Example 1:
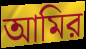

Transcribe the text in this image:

আমির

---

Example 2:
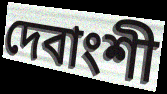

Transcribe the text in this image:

দেবাংশী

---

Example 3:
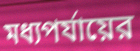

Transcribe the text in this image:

মধ্যপর্যায়ের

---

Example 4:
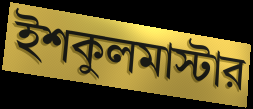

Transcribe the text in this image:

ইশকুলমাস্টার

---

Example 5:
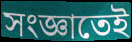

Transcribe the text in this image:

সংজ্ঞাতেই